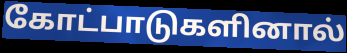
கோட்பாடுகளினால்